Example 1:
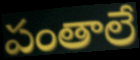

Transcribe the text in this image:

పంతాలే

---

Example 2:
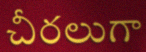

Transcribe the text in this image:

చీరలుగా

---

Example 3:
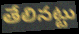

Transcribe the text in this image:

తేలినట్టు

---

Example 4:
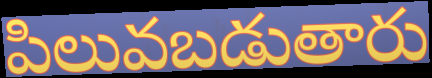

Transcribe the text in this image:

పిలువబడుతారు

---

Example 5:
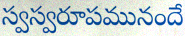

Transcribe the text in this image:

స్వస్వరూపమునందే